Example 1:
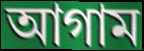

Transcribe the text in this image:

আগাম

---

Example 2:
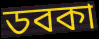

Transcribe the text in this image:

ডবকা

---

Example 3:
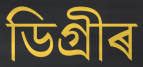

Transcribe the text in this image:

ডিগ্ৰীৰ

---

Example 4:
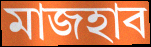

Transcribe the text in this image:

মাজহাব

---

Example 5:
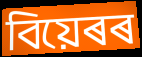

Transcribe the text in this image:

বিয়েৰৰ